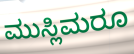
ಮುಸ್ಲಿಮರೂ